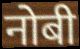
नोबी